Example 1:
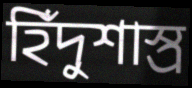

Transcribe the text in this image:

হিঁদুশাস্ত্র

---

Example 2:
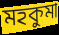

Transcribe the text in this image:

মহকুমা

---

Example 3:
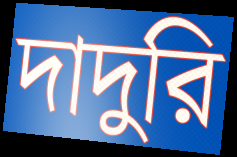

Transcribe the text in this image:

দাদুরি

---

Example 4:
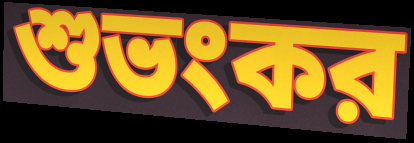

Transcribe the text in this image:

শুভংকর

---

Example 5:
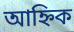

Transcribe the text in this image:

আহ্নিক